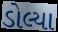
ડોલ્યા